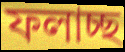
ফলাচ্ছ